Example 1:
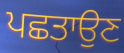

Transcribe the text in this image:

ਪਛਤਾਉਣ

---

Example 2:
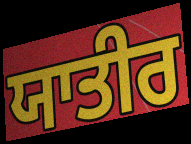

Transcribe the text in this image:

ਯਾਤੀਰ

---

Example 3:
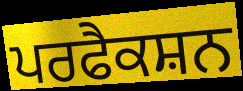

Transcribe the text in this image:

ਪਰਫੈਕਸ਼ਨ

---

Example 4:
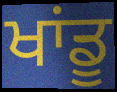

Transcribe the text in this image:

ਖਾਂਡੂ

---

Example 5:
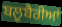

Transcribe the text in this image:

ਬਲੂਬੈਰੀਆਂ